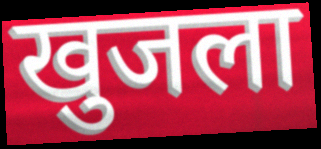
खुजला